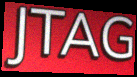
JTAG